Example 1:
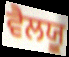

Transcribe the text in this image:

ਵੈਲਯੂ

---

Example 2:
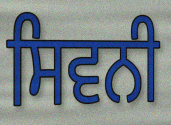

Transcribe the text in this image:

ਸਿਵਨੀ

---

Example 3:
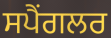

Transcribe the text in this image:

ਸਪੈਂਗਲਰ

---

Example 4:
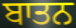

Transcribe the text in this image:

ਬਾਤਨ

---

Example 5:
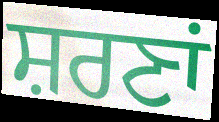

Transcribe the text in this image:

ਸ਼ਰਣਾਂ